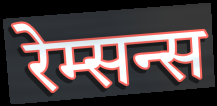
रेम्सन्स